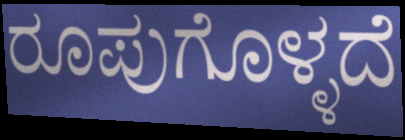
ರೂಪುಗೊಳ್ಳದೆ